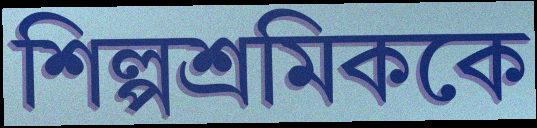
শিল্পশ্রমিককে